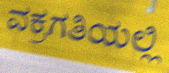
ವಕ್ರಗತಿಯಲ್ಲಿ